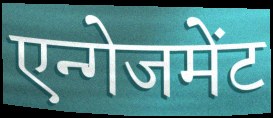
एन्गेजमेंट